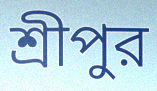
শ্রীপুর